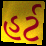
હર્ટ